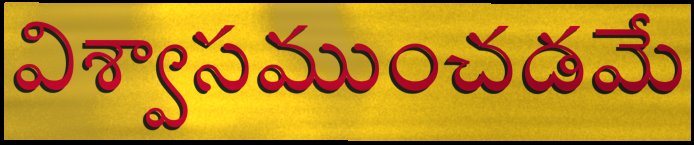
విశ్వాసముంచడమే